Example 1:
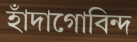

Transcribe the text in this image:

হাঁদাগোবিন্দ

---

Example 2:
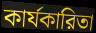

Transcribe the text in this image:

কার্যকারিতা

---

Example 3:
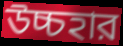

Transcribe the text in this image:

উচ্চহার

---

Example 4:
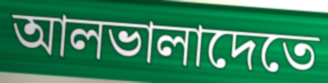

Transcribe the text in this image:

আলভালাদেতে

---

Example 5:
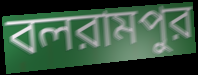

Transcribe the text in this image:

বলরামপুর